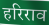
हरिराव